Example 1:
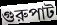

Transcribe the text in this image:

গুরুপাট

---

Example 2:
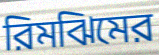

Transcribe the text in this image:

রিমঝিমের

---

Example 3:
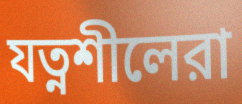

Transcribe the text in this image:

যত্নশীলেরা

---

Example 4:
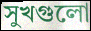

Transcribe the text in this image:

সুখগুলো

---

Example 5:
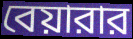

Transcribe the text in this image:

বেয়ারার